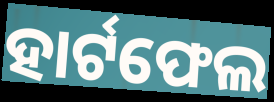
ହାର୍ଟଫେଲ